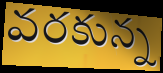
వరకున్న